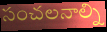
సంచలనాల్ని